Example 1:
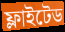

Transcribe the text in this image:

ফ্লাইটেড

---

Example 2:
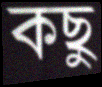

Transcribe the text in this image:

কছু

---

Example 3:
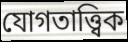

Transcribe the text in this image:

যোগতাত্ত্বিক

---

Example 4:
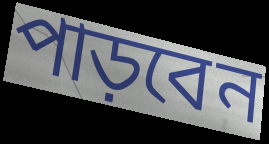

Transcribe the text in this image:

পাড়বেন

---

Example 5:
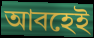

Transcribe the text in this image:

আবহেই